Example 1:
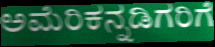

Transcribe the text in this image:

ಅಮೆರಿಕನ್ನಡಿಗರಿಗೆ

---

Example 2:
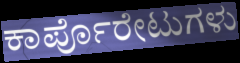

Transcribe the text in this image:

ಕಾರ್ಪೊರೇಟುಗಳು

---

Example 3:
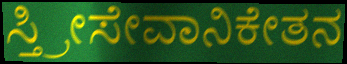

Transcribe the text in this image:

ಸ್ತ್ರೀಸೇವಾನಿಕೇತನ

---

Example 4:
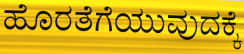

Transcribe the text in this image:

ಹೊರತೆಗೆಯುವುದಕ್ಕೆ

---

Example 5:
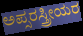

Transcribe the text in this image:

ಅಪ್ಸರಸ್ತ್ರೀಯರ